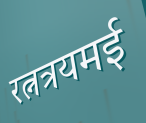
रत्नत्रयमई